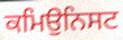
ਕਮਿਉਨਿਸਟ